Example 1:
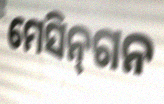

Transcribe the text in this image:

ମେସିନ୍‌ଗନ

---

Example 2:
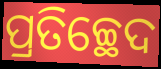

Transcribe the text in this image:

ପ୍ରତିଚ୍ଛେଦ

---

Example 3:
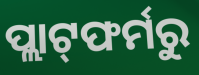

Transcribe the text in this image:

ପ୍ଲାଟ୍‌ଫର୍ମରୁ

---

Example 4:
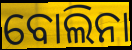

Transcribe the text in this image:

ବୋଲିନା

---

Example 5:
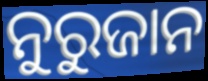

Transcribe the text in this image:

ନୁରୁଜାନ